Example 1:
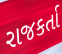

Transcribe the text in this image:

રાજકર્તા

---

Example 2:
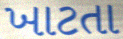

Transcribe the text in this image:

ખાટતા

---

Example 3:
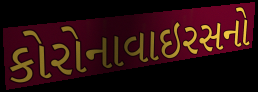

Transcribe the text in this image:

કોરોનાવાઇરસનો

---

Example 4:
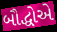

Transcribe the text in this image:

બૌદ્ધોએ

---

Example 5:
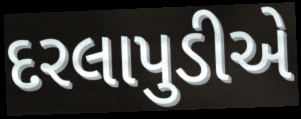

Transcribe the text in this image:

દરલાપુડીએ